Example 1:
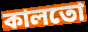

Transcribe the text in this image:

কালতো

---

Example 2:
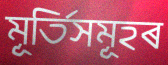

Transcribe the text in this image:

মূৰ্তিসমূহৰ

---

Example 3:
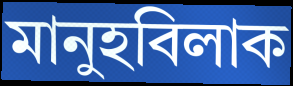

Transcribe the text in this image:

মানুহবিলাক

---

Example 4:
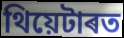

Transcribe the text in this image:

থিয়েটাৰত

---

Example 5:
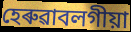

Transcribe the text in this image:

হেৰুৱাবলগীয়া